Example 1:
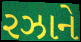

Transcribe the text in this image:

રઝાને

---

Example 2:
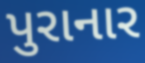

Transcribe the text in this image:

પુરાનાર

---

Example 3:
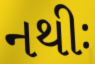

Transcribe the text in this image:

નથીઃ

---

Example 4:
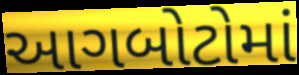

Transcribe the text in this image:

આગબોટોમાં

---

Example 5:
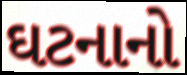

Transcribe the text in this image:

ઘટનાનો